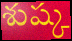
శుష్క